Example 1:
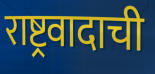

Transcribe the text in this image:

राष्ट्रवादाची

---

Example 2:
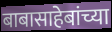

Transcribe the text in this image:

बाबासाहेबांच्‍या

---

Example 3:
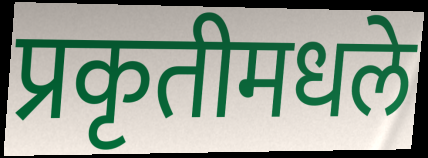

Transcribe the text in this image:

प्रकृतीमधले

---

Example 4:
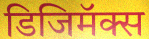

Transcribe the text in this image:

डिजिमॅक्स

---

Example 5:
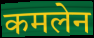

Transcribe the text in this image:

कमलेन